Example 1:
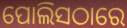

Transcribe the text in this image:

ପୋଲିସଠାରେ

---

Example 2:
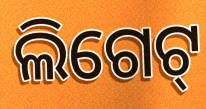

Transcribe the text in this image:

ଲିଗେଟ୍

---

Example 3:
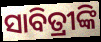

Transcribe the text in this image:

ସାବିତ୍ରୀଙ୍କି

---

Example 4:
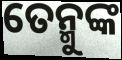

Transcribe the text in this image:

ତେନ୍ମୁଙ୍କ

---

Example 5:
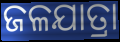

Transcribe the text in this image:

ଜଳଯାତ୍ରା